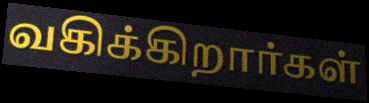
வகிக்கிறார்கள்